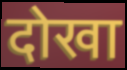
दोखा